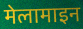
मेलामाइन